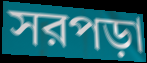
সরপড়া